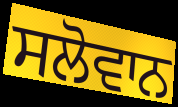
ਸਲੋਵਾਨ